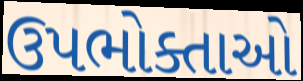
ઉપભોક્તાઓ